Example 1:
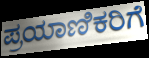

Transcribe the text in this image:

ಪ್ರಯಾಣಿಕರಿಗೆ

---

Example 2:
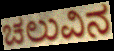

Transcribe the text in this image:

ಚಲುವಿನ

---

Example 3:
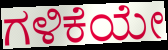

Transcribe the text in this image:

ಗಳಿಕೆಯೇ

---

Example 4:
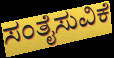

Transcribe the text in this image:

ಸಂತೈಸುವಿಕೆ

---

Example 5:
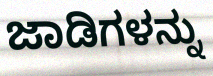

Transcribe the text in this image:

ಜಾಡಿಗಳನ್ನು